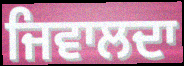
ਜਿਵਾਲਦਾ